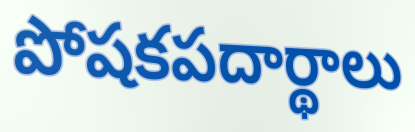
పోషకపదార్థాలు